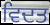
ਵਿਦਤ